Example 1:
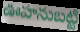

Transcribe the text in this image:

ఊహనుబట్టి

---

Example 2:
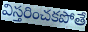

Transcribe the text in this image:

విస్తరించకపోతే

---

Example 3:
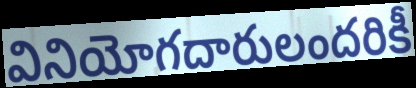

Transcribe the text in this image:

వినియోగదారులందరికీ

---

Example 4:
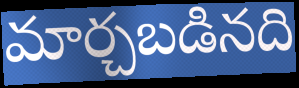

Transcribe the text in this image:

మార్చబడినది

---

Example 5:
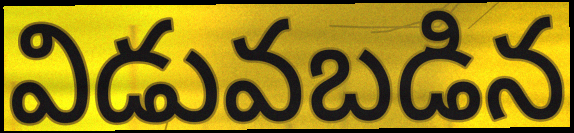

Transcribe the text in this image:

విడువబడిన